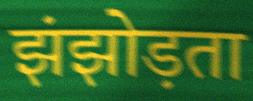
झंझोड़ता